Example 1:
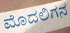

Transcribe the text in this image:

ಮೊದಲಿಗನ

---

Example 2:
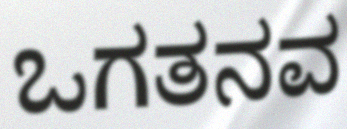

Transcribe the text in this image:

ಒಗತನವ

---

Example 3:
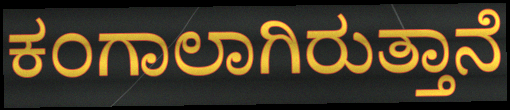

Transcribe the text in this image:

ಕಂಗಾಲಾಗಿರುತ್ತಾನೆ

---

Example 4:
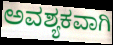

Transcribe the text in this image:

ಅವಶ್ಯಕವಾಗಿ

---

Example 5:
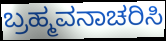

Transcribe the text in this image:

ಬ್ರಹ್ಮವನಾಚರಿಸಿ